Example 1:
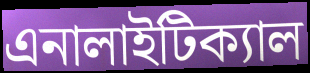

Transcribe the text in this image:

এনালাইটিক্যাল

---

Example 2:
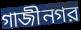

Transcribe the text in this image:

গাজীনগর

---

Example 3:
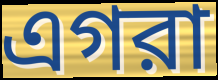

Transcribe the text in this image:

এগরা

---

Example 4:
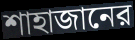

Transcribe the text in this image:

শাহাজানের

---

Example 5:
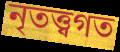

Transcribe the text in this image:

নৃতত্ত্বগত